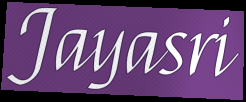
Jayasri